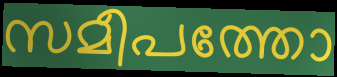
സമീപത്തോ